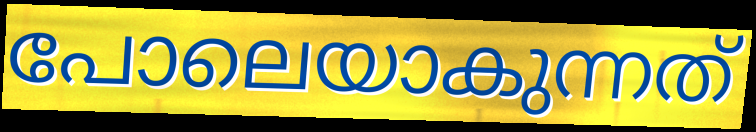
പോലെയാകുന്നത്